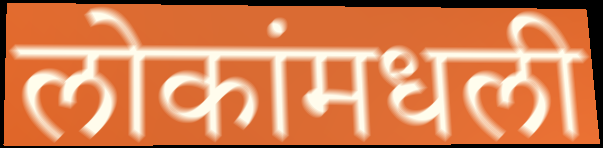
लोकांमधली